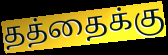
தத்தைக்கு